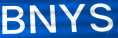
BNYS